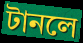
টানলে